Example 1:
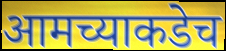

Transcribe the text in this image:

आमच्याकडेच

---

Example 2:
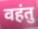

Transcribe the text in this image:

वहंतु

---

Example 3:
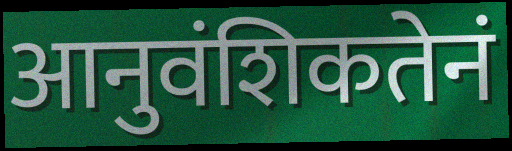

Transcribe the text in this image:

आनुवंशिकतेनं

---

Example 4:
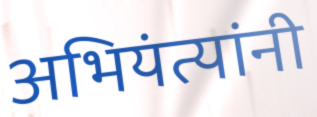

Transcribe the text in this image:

अभियंत्यांनी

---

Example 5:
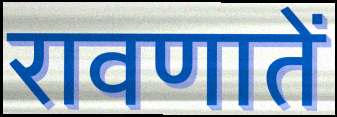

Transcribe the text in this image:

रावणातें